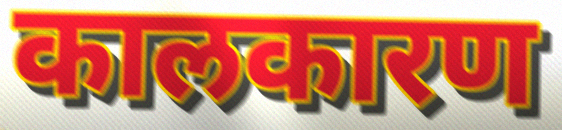
कालकारण